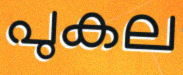
പുകല